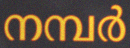
നമ്പർ